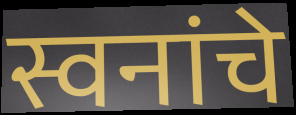
स्वनांचे